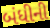
બંધીની